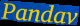
Pandav